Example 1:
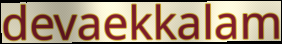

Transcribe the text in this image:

devaekkalam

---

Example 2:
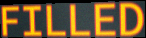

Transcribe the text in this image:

FILLED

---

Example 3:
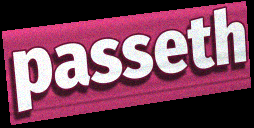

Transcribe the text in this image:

passeth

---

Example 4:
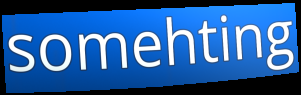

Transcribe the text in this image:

somehting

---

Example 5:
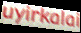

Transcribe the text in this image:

uyirkalai